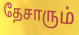
தேசாரும்